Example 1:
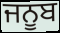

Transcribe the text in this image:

ਜਨੂਬ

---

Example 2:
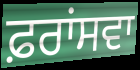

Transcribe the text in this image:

ਫ਼ਰਾਂਸਵਾ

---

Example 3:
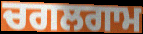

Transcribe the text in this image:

ਚਗਲਗਾਮ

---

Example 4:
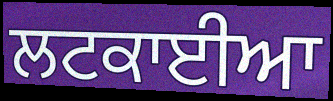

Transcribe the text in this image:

ਲਟਕਾਈਆ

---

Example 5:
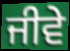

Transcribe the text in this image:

ਜੀਵੇ